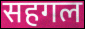
सहगल